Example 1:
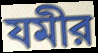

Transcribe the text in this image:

যমীর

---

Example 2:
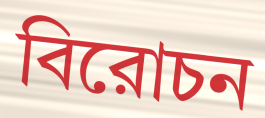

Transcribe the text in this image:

বিরোচন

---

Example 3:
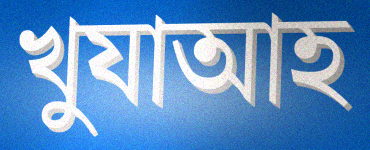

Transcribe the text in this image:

খুযাআহ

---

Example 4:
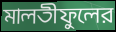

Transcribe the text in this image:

মালতীফুলের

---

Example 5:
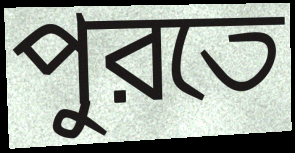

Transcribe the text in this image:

পুরতে